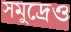
সমুদ্রেও